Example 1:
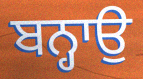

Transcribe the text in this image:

ਬਨ੍ਹਾਉ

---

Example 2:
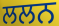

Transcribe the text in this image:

ਲਲਨ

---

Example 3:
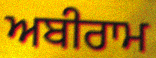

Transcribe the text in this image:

ਅਬੀਰਾਮ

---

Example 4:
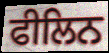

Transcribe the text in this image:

ਫੀਲਿਨ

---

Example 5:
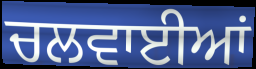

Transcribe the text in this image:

ਚਲਵਾਈਆਂ